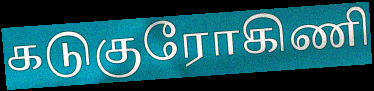
கடுகுரோகிணி